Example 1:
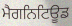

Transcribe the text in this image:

ਮੈਗਨਿਟਿਊਡ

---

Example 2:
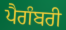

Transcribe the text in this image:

ਪੈਗੰਬਰੀ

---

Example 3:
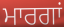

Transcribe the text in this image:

ਮਾਰਗਾਂ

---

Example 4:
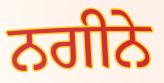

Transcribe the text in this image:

ਨਗੀਨੇ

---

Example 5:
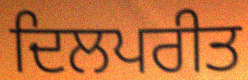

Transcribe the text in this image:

ਦਿਲਪਰੀਤ